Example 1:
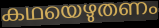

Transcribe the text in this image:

കഥയെഴുതണം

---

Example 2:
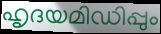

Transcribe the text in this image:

ഹൃദയമിഡിപ്പും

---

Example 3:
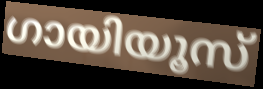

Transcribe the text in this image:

ഗായിയൂസ്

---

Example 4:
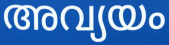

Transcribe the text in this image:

അവ്യയം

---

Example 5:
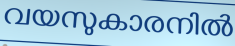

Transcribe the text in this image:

വയസുകാരനിൽ